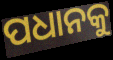
ପଧାନକୁ